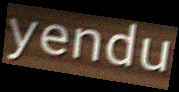
yendu